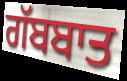
ਗੱਬਬਾਤ